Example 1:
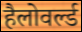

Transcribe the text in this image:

हैलोवर्ल्ड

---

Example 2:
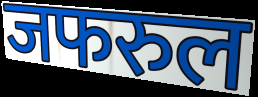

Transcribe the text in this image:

जफरुल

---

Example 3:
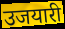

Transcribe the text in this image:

उजयारी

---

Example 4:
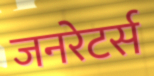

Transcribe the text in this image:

जनरेटर्स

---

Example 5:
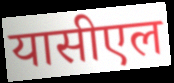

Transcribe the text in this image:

यासीएल